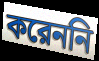
করেননি